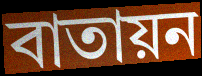
বাতায়ন